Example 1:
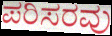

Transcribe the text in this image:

ಪರಿಸರವು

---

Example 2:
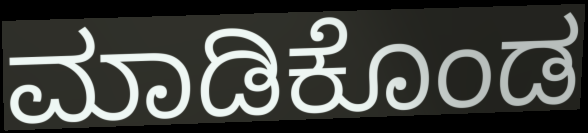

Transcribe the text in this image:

ಮಾಡಿಕೊಂಡ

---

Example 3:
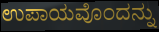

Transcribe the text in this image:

ಉಪಾಯವೊಂದನ್ನು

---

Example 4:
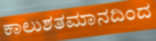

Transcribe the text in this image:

ಕಾಲುಶತಮಾನದಿಂದ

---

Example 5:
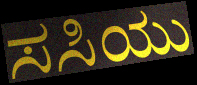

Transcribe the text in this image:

ಸಸಿಯು